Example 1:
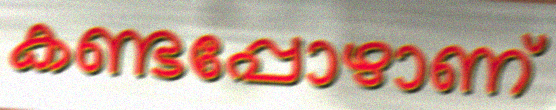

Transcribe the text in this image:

കണ്ടപ്പോഴാണ്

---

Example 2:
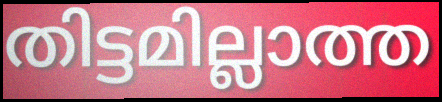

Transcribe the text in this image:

തിട്ടമില്ലാത്ത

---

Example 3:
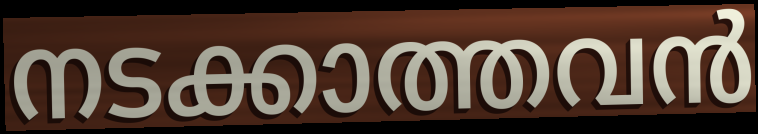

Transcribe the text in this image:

നടക്കാത്തവൻ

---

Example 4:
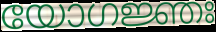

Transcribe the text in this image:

യോഗജ്ഞഃ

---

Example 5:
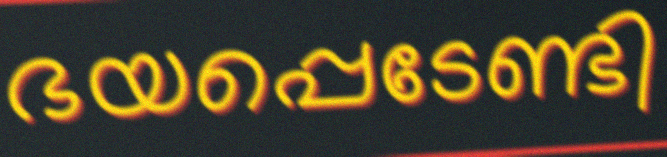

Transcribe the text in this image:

ഭയപ്പെടേണ്ടി